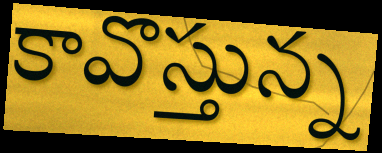
కావొస్తున్న